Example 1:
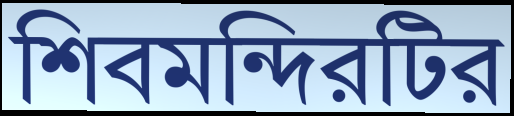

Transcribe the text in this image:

শিবমন্দিরটির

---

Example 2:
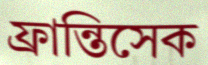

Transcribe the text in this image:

ফ্রান্তিসেক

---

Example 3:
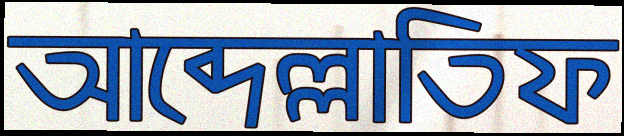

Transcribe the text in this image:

আব্দেল্লাতিফ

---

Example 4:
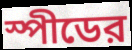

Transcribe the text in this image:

স্পীডের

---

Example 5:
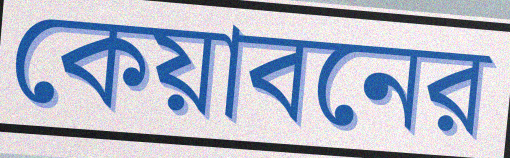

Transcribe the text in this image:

কেয়াবনের